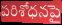
పరిశోధనపై